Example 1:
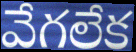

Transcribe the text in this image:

వేగలేక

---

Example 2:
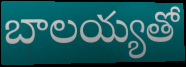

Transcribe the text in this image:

బాలయ్యతో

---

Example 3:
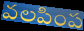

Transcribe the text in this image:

వలపింప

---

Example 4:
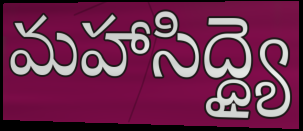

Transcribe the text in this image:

మహాసిద్ధ్యై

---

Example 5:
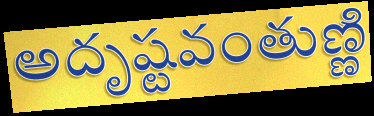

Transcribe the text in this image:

అదృష్టవంతుణ్ణి